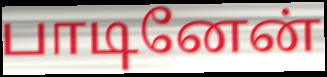
பாடினேன்